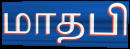
மாதபி